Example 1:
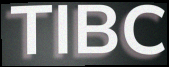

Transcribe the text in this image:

TIBC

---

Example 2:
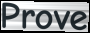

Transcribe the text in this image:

Prove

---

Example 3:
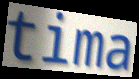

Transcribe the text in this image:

tima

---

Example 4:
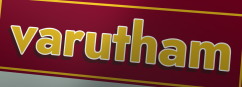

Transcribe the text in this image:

varutham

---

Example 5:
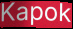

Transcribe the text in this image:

Kapok